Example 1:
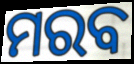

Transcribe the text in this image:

ମରବ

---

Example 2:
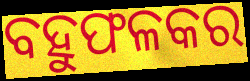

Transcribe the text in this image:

ବହୁଫଳକର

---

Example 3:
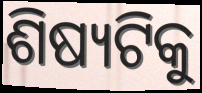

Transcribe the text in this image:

ଶିଷ୍ୟଟିକୁ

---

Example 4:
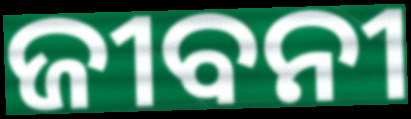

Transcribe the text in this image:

ଜୀବନୀ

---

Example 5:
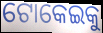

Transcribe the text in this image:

ଟୋକେଇକୁ